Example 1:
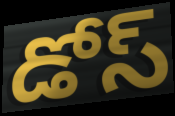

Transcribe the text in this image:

డోస్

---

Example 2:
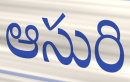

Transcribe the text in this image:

ఆసురి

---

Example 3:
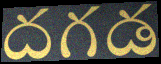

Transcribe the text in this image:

దగడ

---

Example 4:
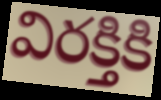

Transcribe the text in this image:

విరక్తికి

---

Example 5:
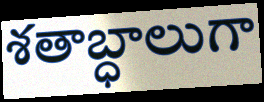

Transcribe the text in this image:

శతాబ్ధాలుగా